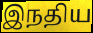
இநதிய